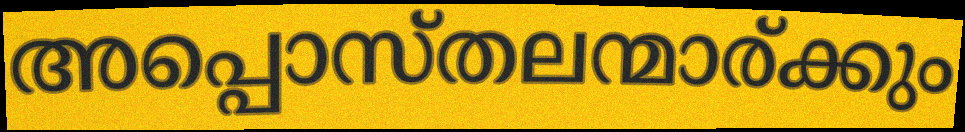
അപ്പൊസ്തലന്മാര്ക്കും